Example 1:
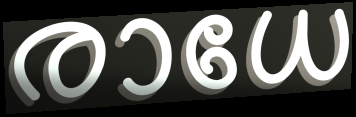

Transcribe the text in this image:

രാധേ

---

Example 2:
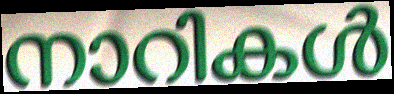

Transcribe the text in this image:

നാറികൾ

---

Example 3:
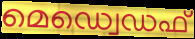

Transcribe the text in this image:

മെഡ്വെഡഫ്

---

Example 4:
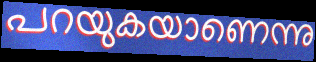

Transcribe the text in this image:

പറയുകയാണെന്നു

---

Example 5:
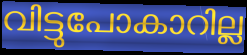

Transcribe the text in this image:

വിട്ടുപോകാറില്ല